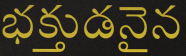
భక్తుడనైన